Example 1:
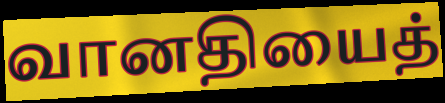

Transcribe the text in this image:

வானதியைத்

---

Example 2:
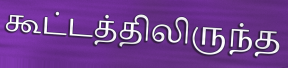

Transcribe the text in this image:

கூட்டத்திலிருந்த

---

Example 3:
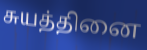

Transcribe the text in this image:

சுயத்தினை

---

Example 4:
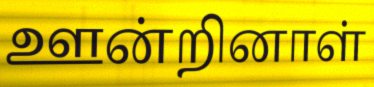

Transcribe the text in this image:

ஊன்றினாள்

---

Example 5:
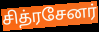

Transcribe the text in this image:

சித்ரசேனர்